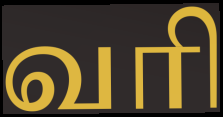
வரி